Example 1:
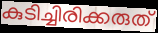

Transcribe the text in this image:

കുടിച്ചിരിക്കരുത്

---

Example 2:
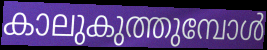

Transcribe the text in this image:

കാലുകുത്തുമ്പോൾ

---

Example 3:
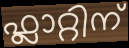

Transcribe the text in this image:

ഫ്ലാറ്റിന്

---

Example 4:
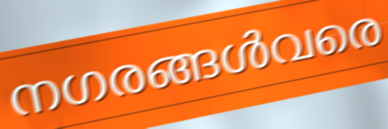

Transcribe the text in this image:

നഗരങ്ങൾവരെ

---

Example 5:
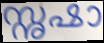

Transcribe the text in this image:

സ്നുഷാ